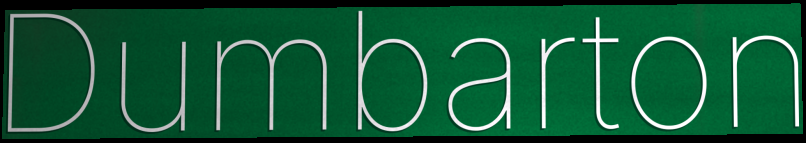
Dumbarton